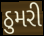
ઠુમરી